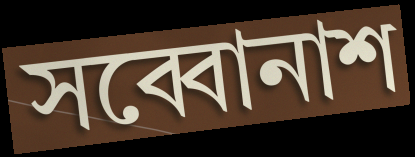
সব্বোনাশ